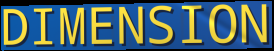
DIMENSION